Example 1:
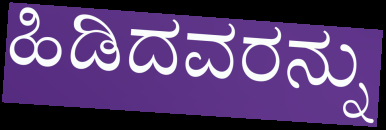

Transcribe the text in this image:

ಹಿಡಿದವರನ್ನು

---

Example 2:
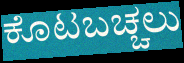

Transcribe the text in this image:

ಕೊಟಬಚ್ಚಲು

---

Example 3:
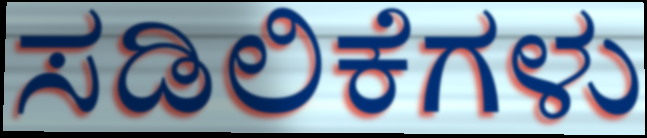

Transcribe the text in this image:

ಸಡಿಲಿಕೆಗಳು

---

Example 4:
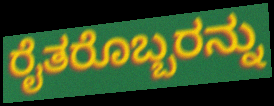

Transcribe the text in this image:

ರೈತರೊಬ್ಬರನ್ನು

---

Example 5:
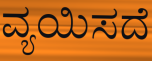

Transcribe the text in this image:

ವ್ಯಯಿಸದೆ